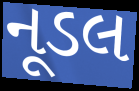
નૂડલ